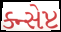
ક્ન્સેપ્ટ